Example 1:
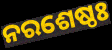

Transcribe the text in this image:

ନରଶେଷ୍ଠଃ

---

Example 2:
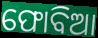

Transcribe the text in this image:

ଫୋବିଆ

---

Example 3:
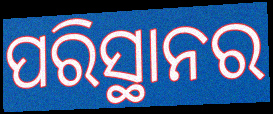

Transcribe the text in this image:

ପରିସ୍ଥାନର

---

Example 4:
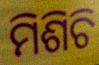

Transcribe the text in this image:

ମିଶିଚି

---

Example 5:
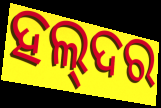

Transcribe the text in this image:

ହଲ୍‌ଦର